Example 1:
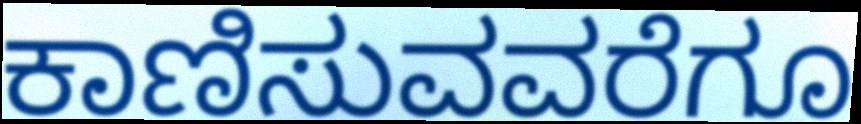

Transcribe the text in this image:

ಕಾಣಿಸುವವರೆಗೂ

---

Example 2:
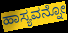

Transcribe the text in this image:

ಹಾಸ್ಯವನ್ನೋ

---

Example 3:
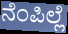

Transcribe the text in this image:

ನೆಂಪಿಲ್ಲೆ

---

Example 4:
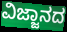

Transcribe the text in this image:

ವಿಜ್ಜಾನದ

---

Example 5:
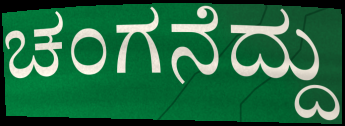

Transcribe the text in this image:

ಚಂಗನೆದ್ದು